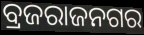
ବ୍ରଜରାଜନଗର